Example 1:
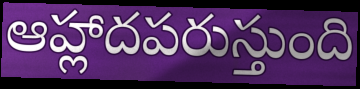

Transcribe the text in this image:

ఆహ్లాదపరుస్తుంది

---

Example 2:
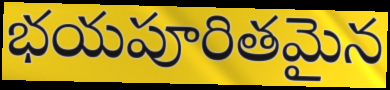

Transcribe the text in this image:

భయపూరితమైన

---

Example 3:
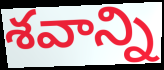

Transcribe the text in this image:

శవాన్ని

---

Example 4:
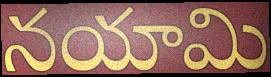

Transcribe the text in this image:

నయామి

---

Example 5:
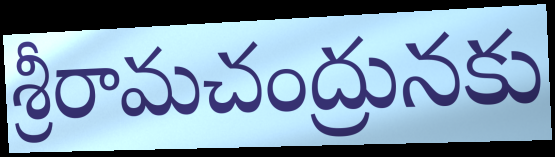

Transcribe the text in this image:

శ్రీరామచంద్రునకు